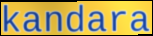
kandara